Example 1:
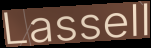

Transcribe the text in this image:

Lassell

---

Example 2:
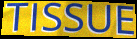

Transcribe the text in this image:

TISSUE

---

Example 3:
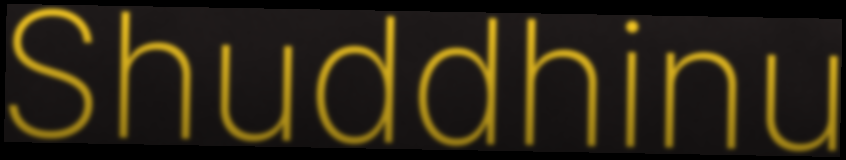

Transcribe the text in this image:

Shuddhinu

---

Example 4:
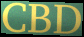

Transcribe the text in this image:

CBD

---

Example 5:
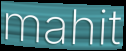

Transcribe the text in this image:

mahit